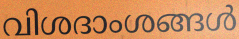
വിശദാംശങ്ങൾ